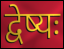
द्वेष्यः